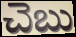
చెబు